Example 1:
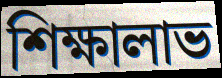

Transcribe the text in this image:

শিক্ষালাভ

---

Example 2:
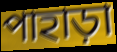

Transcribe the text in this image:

পাহাড়া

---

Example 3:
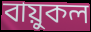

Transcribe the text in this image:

বায়ুকল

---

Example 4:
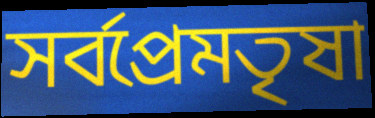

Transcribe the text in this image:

সর্বপ্রেমতৃষা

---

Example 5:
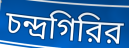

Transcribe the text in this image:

চন্দ্রগিরির